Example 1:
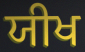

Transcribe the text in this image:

ਯੀਖ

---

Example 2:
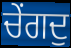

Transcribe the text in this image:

ਚੇਂਗਦੁ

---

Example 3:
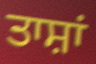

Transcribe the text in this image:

ਤਾਸ਼ਾਂ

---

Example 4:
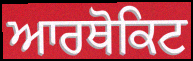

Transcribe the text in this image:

ਆਰਥੋਕਿਟ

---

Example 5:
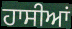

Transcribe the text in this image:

ਹਾਸੀਆਂ